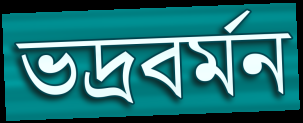
ভদ্রবর্মন